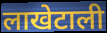
लाखेटाली